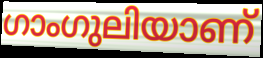
ഗാംഗുലിയാണ്